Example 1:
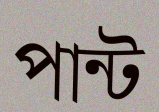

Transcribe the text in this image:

পান্ট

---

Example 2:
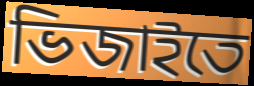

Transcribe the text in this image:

ভিজাইতে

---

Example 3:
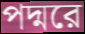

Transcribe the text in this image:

পদ্মরে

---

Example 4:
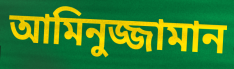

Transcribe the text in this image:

আমিনুজ্জামান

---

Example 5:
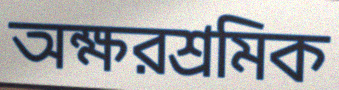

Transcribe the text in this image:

অক্ষরশ্রমিক